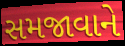
સમજાવાને